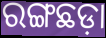
ରଙ୍ଗଛଡ଼ା